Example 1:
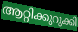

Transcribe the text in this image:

ആറ്റിക്കുറുക്കി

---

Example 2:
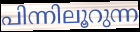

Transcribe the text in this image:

പിന്നിലൂറുന്ന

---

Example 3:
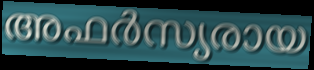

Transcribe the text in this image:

അഫർസ്യരായ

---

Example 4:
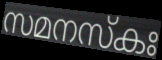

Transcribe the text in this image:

സമനസ്കഃ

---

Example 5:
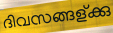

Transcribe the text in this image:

ദിവസങ്ങള്ക്കു